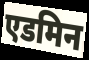
एडमिन